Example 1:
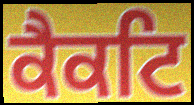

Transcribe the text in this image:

ਕੈਕਟਿ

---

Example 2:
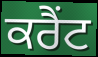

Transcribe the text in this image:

ਕਰੈਂਟ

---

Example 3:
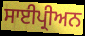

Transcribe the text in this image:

ਸਾਈਪ੍ਰੀਅਨ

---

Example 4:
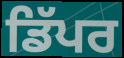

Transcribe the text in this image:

ਡਿੱਪਰ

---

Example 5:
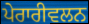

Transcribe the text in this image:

ਪੇਰਾਰੀਵਲਨ